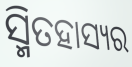
ସ୍ମିତହାସ୍ୟର